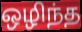
ஒழிந்த